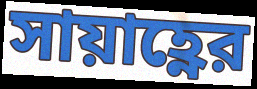
সায়াহ্ণের